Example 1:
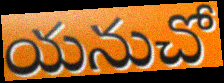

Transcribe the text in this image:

యనుచో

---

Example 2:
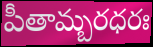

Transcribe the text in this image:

పీతామ్బరధరః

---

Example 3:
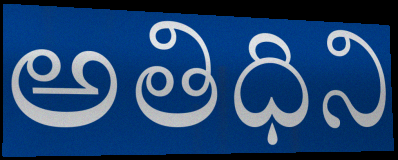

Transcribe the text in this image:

అతిధిని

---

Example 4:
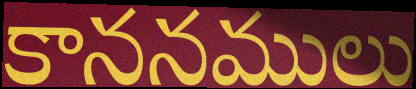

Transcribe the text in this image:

కాననములు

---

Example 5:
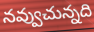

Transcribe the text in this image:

నవ్వుచున్నది